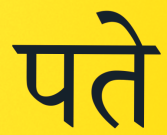
पते